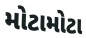
મોટામોટા